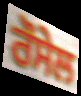
ਰੌਸੇਲ